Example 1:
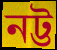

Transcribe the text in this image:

নট্ট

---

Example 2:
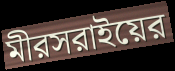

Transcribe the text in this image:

মীরসরাইয়ের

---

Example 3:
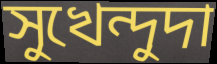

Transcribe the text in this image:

সুখেন্দুদা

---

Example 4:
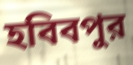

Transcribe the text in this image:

হবিবপুর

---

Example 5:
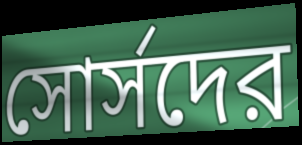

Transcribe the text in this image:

সোর্সদের